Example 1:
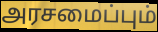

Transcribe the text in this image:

அரசமைப்பும்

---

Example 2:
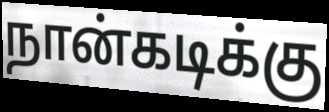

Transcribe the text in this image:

நான்கடிக்கு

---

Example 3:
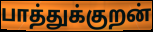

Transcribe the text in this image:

பாத்துக்குறன்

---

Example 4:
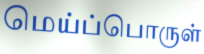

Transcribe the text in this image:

மெய்ப்பொருள்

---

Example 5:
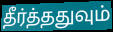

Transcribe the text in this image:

தீர்த்ததுவும்